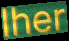
lher